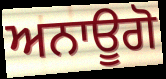
ਅਨਾਊਗੋ